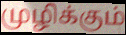
முழிக்கும்